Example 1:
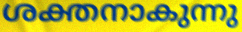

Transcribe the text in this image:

ശക്തനാകുന്നു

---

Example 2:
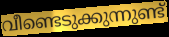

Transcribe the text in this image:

വീണ്ടെടുക്കുന്നുണ്ട്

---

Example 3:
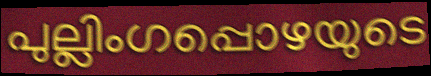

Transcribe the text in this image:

പുല്ലിംഗപ്പൊഴയുടെ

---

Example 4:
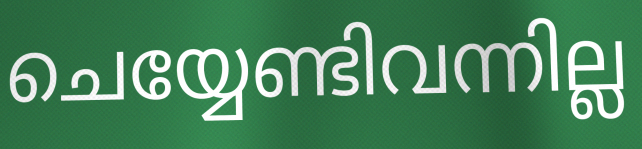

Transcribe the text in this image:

ചെയ്യേണ്ടിവന്നില്ല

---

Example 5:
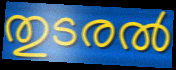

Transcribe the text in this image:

തുടരൽ